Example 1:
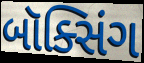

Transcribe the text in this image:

બૉક્સિંગ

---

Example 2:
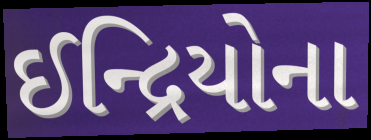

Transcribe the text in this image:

ઈન્દ્રિયોના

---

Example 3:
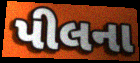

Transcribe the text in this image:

પીલના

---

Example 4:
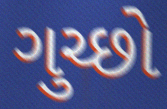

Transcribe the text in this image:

ગુચ્છો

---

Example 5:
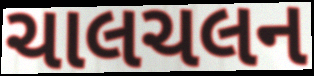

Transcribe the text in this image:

ચાલચલન